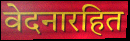
वेदनारहित